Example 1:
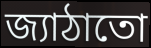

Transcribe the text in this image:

জ্যাঠাতো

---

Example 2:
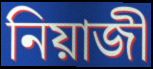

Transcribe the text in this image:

নিয়াজী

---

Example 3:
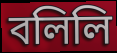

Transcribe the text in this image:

বলিলি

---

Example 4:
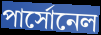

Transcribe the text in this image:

পার্সোনেল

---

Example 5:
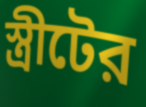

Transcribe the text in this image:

স্ত্রীটের